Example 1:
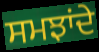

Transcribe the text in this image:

ਸਮਝਾਂਦੇ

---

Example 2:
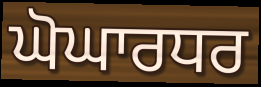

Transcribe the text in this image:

ਘੋਘਾਰਧਰ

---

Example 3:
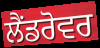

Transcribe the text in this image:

ਲੈਂਡਰੋਵਰ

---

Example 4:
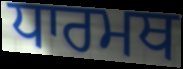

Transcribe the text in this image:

ਧਾਰਮਥ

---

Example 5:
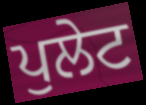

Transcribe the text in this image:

ਪੁਲੇਟ